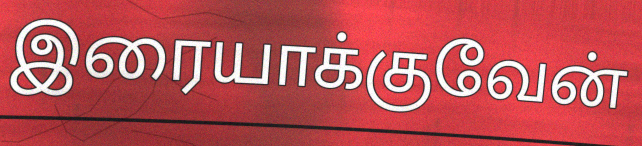
இரையாக்குவேன்